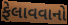
ફેલાવવાનો